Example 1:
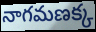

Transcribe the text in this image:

నాగమణక్క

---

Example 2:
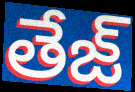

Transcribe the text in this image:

తేజ్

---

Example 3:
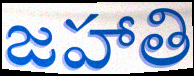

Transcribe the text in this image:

జహాతి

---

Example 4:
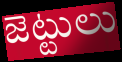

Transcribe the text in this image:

జెట్టులు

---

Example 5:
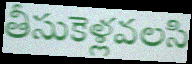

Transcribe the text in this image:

తీసుకెళ్లవలసి